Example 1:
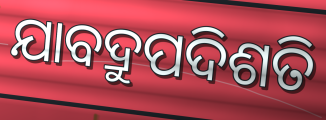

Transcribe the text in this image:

ଯାବଦ୍ରୁପଦିଶତି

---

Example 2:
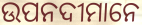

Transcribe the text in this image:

ଉପନଦୀମାନେ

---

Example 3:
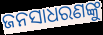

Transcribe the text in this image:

ଜନସାଧରଣଙ୍କୁ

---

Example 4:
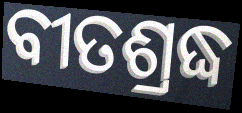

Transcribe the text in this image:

ବୀତଶ୍ରଦ୍ଧ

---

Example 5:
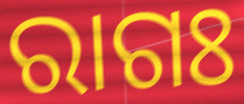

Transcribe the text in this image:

ରାଗଃ